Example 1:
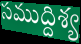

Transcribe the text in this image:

సముద్దిశ్య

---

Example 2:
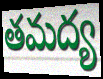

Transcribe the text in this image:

తమద్య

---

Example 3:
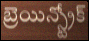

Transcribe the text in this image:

బ్రెయిన్స్ట్రోక్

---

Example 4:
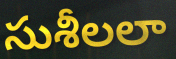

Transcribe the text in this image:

సుశీలలా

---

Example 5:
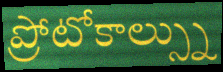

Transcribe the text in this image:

ప్రోటోకాల్స్ను